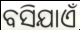
ବସିଯାଏଁ